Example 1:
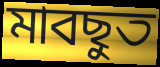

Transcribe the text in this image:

মাবছুত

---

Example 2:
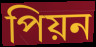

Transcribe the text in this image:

পিয়ন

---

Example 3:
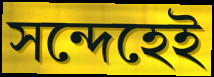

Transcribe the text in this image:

সন্দেহেই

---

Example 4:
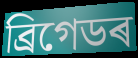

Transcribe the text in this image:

ব্ৰিগেডৰ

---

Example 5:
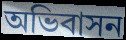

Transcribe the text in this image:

অভিবাসন